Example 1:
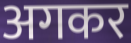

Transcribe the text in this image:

अगकर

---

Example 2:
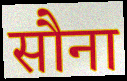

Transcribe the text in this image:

सौना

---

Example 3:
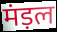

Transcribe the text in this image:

मंड़ल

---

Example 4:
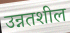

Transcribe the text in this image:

उन्नतशील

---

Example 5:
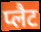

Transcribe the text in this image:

प्लैट